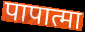
पापात्मा